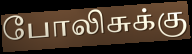
போலிசுக்கு